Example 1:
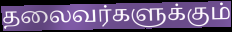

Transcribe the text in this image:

தலைவர்களுக்கும்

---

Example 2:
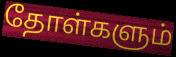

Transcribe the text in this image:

தோள்களும்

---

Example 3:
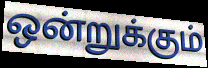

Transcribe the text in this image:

ஒன்றுக்கும்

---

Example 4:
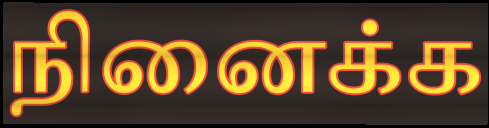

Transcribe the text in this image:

நினைக்க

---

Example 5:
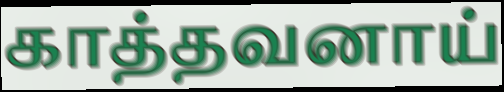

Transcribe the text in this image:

காத்தவனாய்